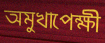
অমুখাপেক্ষী